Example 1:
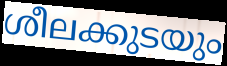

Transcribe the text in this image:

ശീലക്കുടയും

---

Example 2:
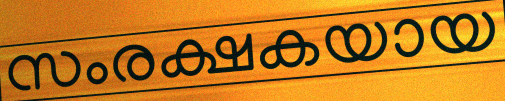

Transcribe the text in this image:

സംരക്ഷകയായ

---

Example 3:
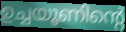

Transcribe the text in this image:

ഉച്ചയൂണിന്റെ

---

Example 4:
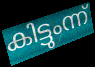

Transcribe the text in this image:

കിട്ടുംന്ന്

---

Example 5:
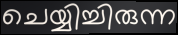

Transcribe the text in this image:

ചെയ്യിച്ചിരുന്ന